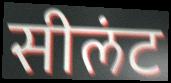
सीलंट